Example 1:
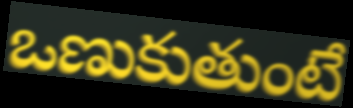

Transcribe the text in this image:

ఒణుకుతుంటే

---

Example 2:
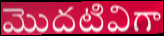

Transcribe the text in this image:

మొదటివిగా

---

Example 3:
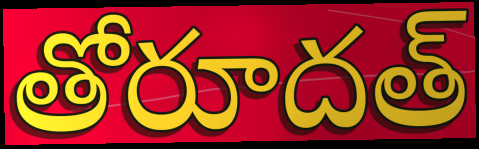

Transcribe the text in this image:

తోరూదత్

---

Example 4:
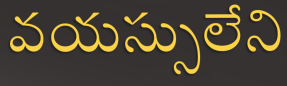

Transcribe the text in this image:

వయస్సులేని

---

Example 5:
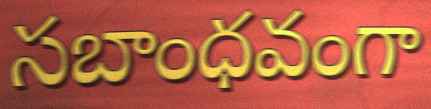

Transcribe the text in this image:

సబాంధవంగా